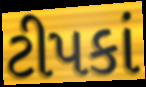
ટીપકાં